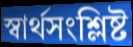
স্বার্থসংশ্লিষ্ট